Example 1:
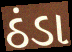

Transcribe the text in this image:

ઠંડા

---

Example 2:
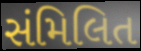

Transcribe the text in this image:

સંમિલિત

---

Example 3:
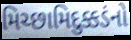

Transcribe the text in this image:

મિચ્છામિદુક્કડંનો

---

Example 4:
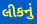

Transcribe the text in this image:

લીકનું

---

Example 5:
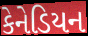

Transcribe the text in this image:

કેનેડિયન